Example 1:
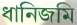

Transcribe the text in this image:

ধানিজমি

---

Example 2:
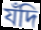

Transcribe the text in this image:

যঁদি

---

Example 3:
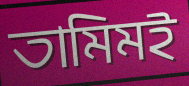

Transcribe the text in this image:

তামিমই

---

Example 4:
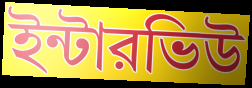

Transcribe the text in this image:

ইন্টারভিউ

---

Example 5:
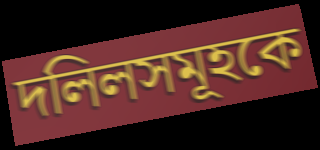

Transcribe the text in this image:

দলিলসমূহকে